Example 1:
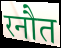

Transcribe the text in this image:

रनौत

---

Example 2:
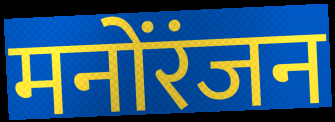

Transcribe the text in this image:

मनोंरंजन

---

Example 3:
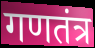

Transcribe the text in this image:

गणतंत्र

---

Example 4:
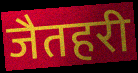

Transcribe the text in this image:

जैतहरी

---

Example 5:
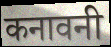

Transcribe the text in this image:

कनावनी